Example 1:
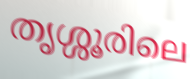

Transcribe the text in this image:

തൃശ്ശൂരിലെ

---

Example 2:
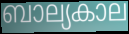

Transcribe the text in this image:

ബാല്യകാല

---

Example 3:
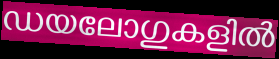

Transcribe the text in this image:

ഡയലോഗുകളിൽ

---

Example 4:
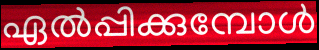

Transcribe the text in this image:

ഏൽപ്പിക്കുമ്പോൾ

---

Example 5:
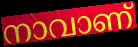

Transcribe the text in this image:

നാവാണ്